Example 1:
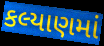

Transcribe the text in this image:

કલ્યાણમાં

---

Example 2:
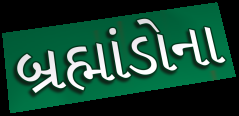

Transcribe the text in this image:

બ્રહ્માંડોના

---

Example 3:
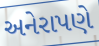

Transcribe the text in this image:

અનેરાપણે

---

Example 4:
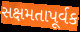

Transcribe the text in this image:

સક્ષમતાપૂર્વક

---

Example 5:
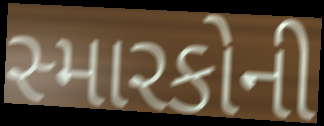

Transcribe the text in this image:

સ્મારકોની